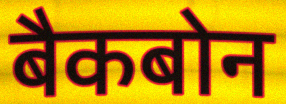
बैकबोन